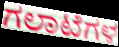
ಗಲಾಟೆಗಳ